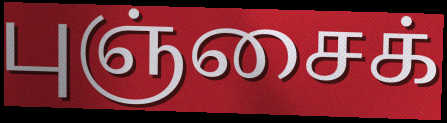
புஞ்சைக்